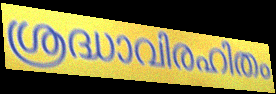
ശ്രദ്ധാവിരഹിതം